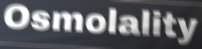
Osmolality